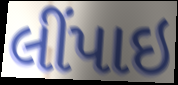
લીંપાઇ